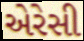
એરેસી